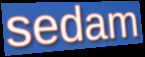
sedam